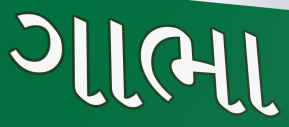
ગાભા